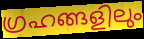
ഗ്രഹങ്ങളിലും